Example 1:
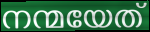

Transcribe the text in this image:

നന്മയേത്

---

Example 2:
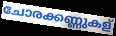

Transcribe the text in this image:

ചോരക്കണ്ണുകള്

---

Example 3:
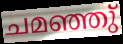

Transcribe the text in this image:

ചമഞ്ഞു്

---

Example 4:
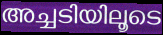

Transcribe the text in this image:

അച്ചടിയിലൂടെ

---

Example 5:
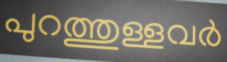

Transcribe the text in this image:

പുറത്തുള്ളവർ